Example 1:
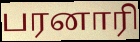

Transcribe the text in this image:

பரனாரி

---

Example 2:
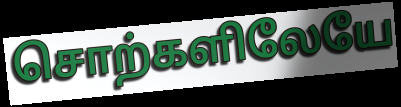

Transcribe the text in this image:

சொற்களிலேயே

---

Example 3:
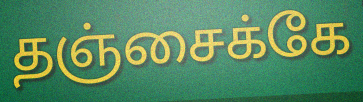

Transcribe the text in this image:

தஞ்சைக்கே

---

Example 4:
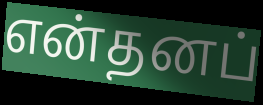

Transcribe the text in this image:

என்தனப்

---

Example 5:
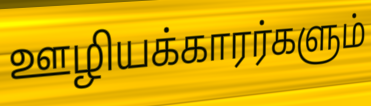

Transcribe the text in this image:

ஊழியக்காரர்களும்